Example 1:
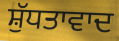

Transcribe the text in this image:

ਸ਼ੁੱਧਤਾਵਾਦ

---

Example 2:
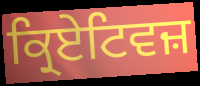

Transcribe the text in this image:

ਕ੍ਰਿਏਟਿਵਜ਼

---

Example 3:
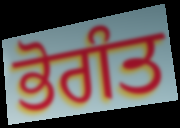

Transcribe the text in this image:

ਭੋਗੰਤ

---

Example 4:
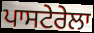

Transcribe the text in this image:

ਪਾਸਟੇਰੇਲਾ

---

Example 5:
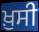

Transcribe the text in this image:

ਖ਼ੁਸੀ